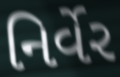
નિર્વેર